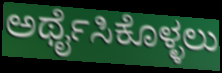
ಅರ್ಥೈಸಿಕೊಳ್ಳಲು